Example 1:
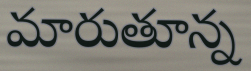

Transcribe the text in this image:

మారుతూన్న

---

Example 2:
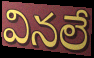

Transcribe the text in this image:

వినలే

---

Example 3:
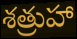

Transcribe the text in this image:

శత్రుహా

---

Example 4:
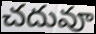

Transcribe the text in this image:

చదువూ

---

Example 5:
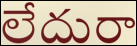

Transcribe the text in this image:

లేదురా